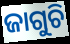
ଜାଗୁଚି